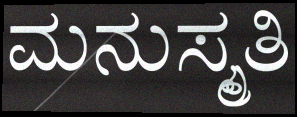
ಮನುಸ್ಮೃತಿ